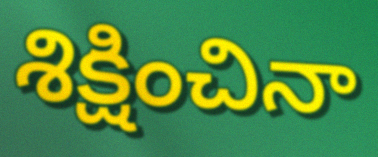
శిక్షించినా